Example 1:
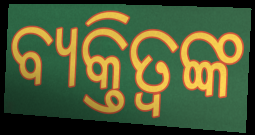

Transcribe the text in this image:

ବ୍ୟକ୍ତିତ୍ବଙ୍କ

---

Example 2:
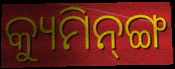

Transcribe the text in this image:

କ୍ୟୁମିନ୍‌ଙ୍ଗ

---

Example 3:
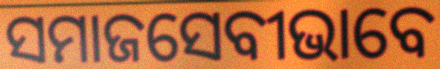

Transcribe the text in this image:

ସମାଜସେବୀଭାବେ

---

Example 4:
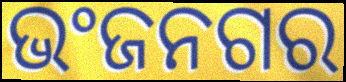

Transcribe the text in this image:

ଭଂଜନଗର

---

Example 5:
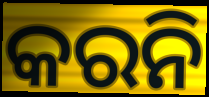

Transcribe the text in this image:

କରନି